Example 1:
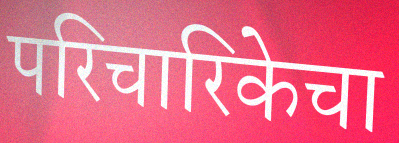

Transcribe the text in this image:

परिचारिकेचा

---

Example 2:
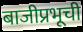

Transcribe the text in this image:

बाजीप्रभूची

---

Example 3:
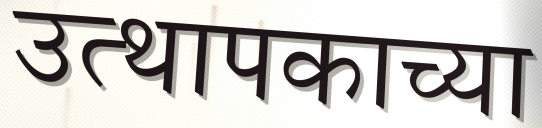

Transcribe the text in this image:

उत्थापकाच्या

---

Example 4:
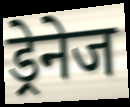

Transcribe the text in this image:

ड्रेनेज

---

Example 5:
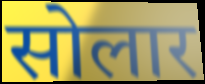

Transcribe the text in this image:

सोलार